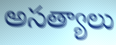
అసత్యాలు